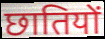
छातियों